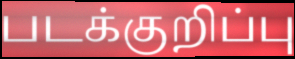
படக்குறிப்பு